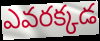
ఎవరక్కడ